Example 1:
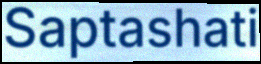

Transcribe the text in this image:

Saptashati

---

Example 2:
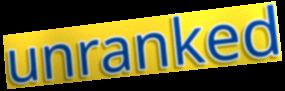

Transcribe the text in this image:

unranked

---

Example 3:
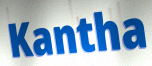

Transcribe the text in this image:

Kantha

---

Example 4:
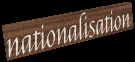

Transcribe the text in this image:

nationalisation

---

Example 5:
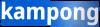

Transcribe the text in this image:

kampong